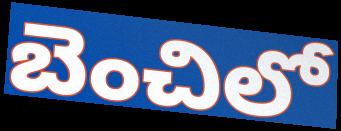
బెంచిలో